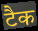
टैक